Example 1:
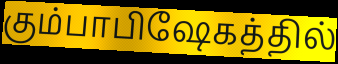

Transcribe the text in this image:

கும்பாபிஷேகத்தில்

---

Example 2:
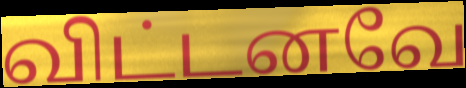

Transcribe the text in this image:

விட்டனவே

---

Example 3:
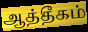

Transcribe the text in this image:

ஆத்தீகம்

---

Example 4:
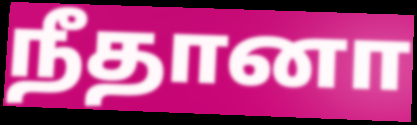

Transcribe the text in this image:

நீதானா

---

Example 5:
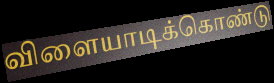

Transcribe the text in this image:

விளையாடிக்கொண்டு